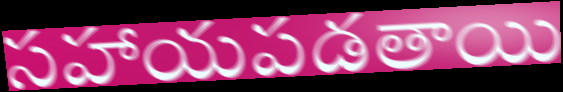
సహాయపడతాయి